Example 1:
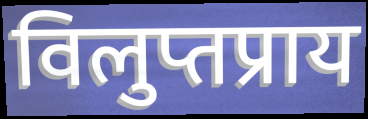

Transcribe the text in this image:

विलुप्तप्राय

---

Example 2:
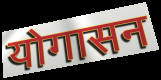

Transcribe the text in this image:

योगासन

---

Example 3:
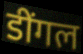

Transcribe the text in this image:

डींगल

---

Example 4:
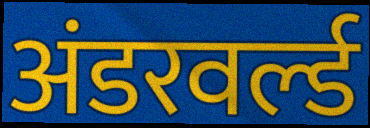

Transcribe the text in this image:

अंडरवर्ल्‍ड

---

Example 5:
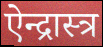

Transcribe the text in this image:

ऐन्द्रास्त्र